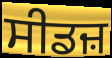
ਸੀਡਜ਼